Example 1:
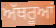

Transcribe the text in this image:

ਅੱਥਰੂਆਂ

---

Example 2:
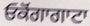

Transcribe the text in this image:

ਓਕੋਂਗਾਗਾਟਾ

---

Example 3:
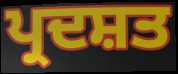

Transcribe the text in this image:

ਪ੍ਰਦਸ਼ਤ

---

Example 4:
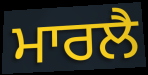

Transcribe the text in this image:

ਮਾਰਲੈ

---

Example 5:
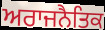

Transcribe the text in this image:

ਅਰਾਜਨੈਤਿਕ